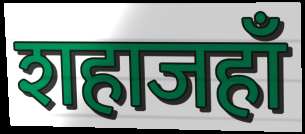
शहाजहाँ